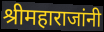
श्रीमहाराजांनी